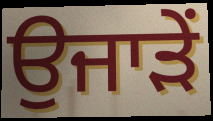
ਉਜਾੜੇਂ